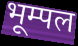
भूम्पल